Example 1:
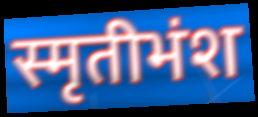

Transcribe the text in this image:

स्मृतीभंश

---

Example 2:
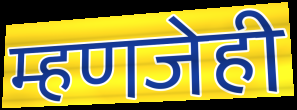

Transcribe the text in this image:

म्हणजेही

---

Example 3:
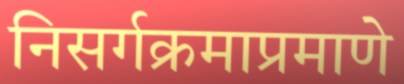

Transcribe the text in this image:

निसर्गक्रमाप्रमाणे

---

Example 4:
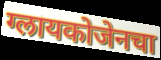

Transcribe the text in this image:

ग्लायकोजेनचा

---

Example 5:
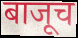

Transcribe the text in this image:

बाजूच